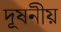
দূষনীয়